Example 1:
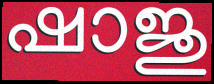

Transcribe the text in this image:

ഷാജു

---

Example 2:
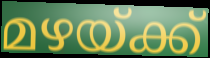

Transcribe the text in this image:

മഴയ്ക്ക്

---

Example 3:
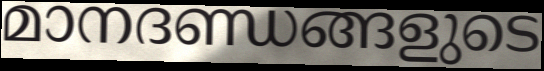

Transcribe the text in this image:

മാനദണ്ഡങ്ങളുടെ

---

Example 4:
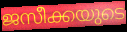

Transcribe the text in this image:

ജസീക്കയുടെ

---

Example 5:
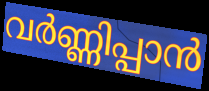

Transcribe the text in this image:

വർണ്ണിപ്പാൻ